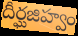
దీర్ఘజిహ్వం